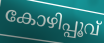
കോഴിപ്പൂവ്